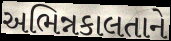
અભિન્નકાલતાને